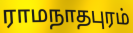
ராமநாதபுரம்